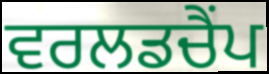
ਵਰਲਡਚੈਂਪ